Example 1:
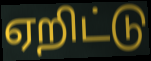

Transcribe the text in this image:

ஏறிட்டு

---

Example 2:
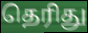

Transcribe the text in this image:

தெரிது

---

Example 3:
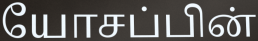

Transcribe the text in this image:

யோசப்பின்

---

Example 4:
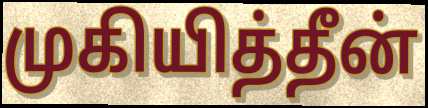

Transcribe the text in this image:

முகியித்தீன்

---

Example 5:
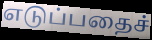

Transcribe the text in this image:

எடுப்பதைச்